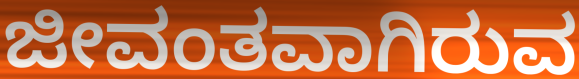
ಜೀವಂತವಾಗಿರುವ